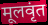
मूलवृंत